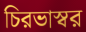
চিরভাস্বর